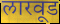
लारवूड